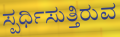
ಸ್ಪರ್ಧಿಸುತ್ತಿರುವ